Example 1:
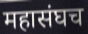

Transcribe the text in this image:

महासंघच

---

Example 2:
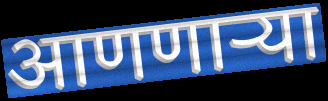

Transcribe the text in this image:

आणणाऱ्या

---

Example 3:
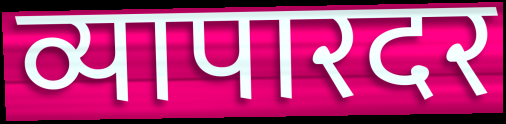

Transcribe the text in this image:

व्यापारदर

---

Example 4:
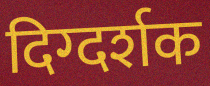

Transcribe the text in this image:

दिग्‍दर्शक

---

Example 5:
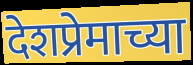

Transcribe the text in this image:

देशप्रेमाच्या